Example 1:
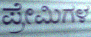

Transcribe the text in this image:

ಪ್ರೇಮಿಗಳ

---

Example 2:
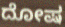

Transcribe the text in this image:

ದೋಷ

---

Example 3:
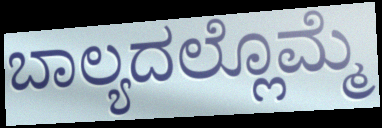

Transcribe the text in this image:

ಬಾಲ್ಯದಲ್ಲೊಮ್ಮೆ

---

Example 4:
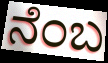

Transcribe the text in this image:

ನೆಂಬ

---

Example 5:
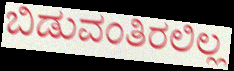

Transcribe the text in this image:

ಬಿಡುವಂತಿರಲಿಲ್ಲ